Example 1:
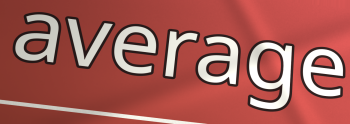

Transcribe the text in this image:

average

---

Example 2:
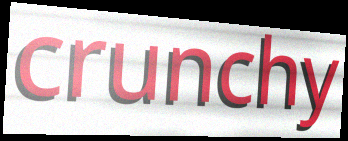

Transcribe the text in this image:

crunchy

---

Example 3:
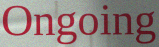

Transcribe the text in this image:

Ongoing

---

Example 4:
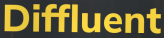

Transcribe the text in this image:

Diffluent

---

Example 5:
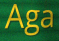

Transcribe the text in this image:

Aga